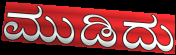
ಮುಡಿದು